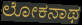
ಲೋಕನಾಥ